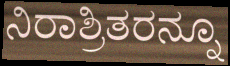
ನಿರಾಶ್ರಿತರನ್ನೂ